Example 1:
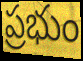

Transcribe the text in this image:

ప్రభుం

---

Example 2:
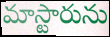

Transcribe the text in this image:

మాస్టారును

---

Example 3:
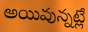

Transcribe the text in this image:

అయివున్నట్లే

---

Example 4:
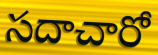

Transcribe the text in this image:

సదాచారో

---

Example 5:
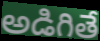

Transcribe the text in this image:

అడిగితే